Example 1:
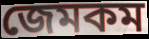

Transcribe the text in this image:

জেমকম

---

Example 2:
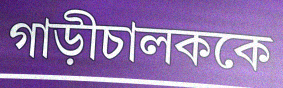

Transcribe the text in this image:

গাড়ীচালককে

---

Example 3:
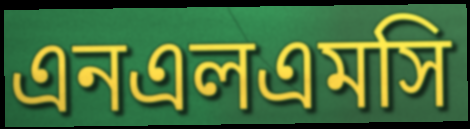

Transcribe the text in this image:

এনএলএমসি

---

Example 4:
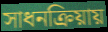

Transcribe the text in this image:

সাধনক্রিয়ায়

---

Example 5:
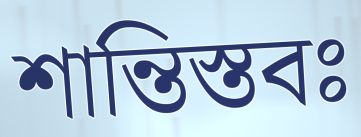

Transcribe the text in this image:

শান্তিস্তবঃ